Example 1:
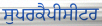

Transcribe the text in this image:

ਸੁਪਰਕੈਪੀਸੀਟਰ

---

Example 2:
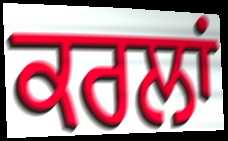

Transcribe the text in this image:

ਕਰਲਾਂ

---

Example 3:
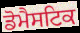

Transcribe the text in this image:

ਡੋਮੈਸਟਿਕ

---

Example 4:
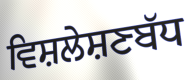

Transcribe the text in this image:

ਵਿਸ਼ਲੇਸ਼ਣਬੱਧ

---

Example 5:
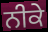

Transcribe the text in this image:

ਨੀਕੇ